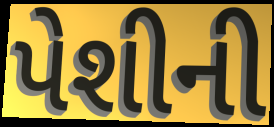
પેશીની